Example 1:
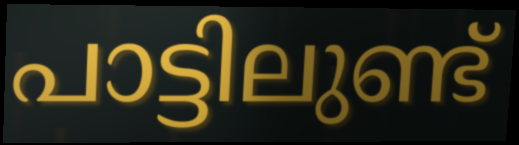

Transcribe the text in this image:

പാട്ടിലുണ്ട്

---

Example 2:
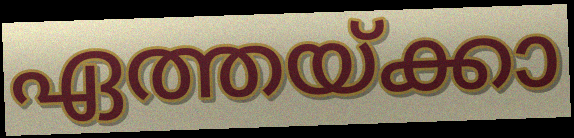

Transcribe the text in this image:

ഏത്തയ്ക്കാ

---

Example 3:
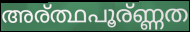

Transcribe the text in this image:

അര്ത്ഥപൂര്ണ്ണത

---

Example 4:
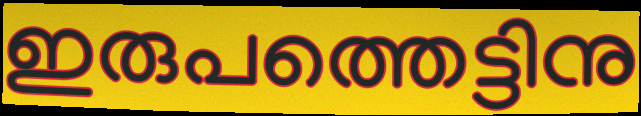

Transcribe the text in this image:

ഇരുപത്തെട്ടിനു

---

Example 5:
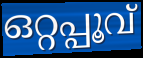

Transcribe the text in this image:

ഒറ്റപ്പൂവ്